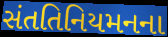
સંતતિનિયમનના